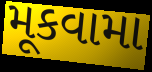
મૂકવામા